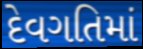
દેવગતિમાં